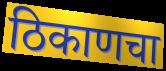
ठिकाणचा